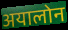
अयालोन